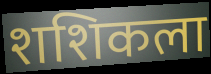
शशिकला